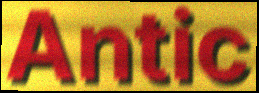
Antic